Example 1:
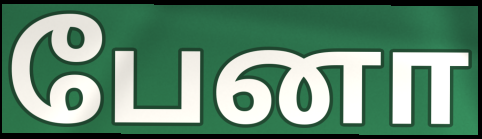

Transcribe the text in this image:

பேனா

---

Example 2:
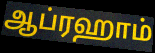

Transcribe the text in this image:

ஆப்ரஹாம்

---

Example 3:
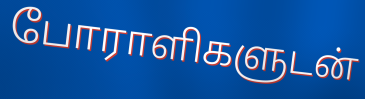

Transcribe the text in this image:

போராளிகளுடன்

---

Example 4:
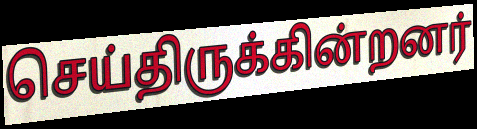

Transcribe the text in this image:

செய்திருக்கின்றனர்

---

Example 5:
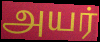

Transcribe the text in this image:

அயர்